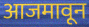
आजमावून